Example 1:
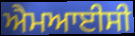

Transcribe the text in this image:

ਐਮਆਈਸੀ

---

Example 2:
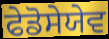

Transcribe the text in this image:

ਫੇਡੋਸੇਯੇਵ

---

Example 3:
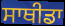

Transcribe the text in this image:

ਸਾਥੀਡਾ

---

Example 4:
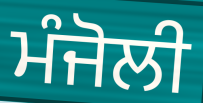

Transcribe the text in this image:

ਮੰਜੋਲੀ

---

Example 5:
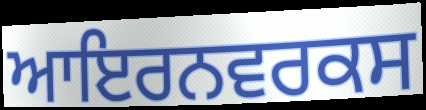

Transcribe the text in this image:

ਆਇਰਨਵਰਕਸ